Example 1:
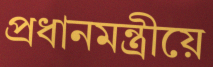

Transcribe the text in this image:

প্ৰধানমন্ত্ৰীয়ে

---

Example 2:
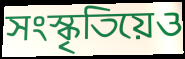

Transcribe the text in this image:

সংস্কৃতিয়েও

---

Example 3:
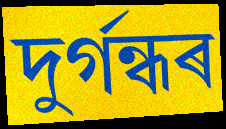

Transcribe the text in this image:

দুৰ্গন্ধৰ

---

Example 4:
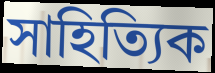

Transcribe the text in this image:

সাহিত্য়িক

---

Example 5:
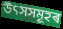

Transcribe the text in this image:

উৎসসমূহৰ